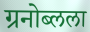
ग्रनोब्लला